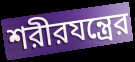
শরীরযন্ত্রের